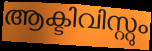
ആക്ടിവിസ്റ്റും